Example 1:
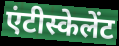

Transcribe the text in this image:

एंटीस्केलेंट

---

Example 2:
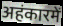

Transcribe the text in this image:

अहंकारमें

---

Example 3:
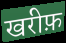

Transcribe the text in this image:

खरीफ़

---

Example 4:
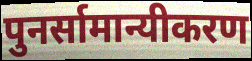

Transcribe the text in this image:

पुनर्सामान्यीकरण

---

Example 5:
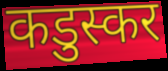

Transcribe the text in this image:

कडुस्कर